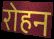
रोहन